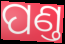
ପଣ୍ତ